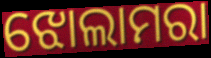
ଝୋଲାମରା